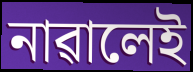
নাৱালেই